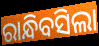
ରାନ୍ଧିବସିଲା